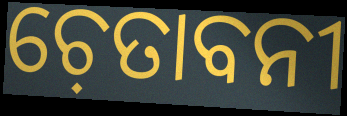
ଚ଼େତାବନୀ